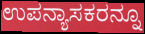
ಉಪನ್ಯಾಸಕರನ್ನೂ